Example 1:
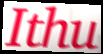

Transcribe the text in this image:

Ithu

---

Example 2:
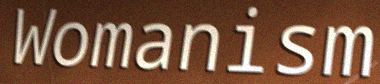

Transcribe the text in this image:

Womanism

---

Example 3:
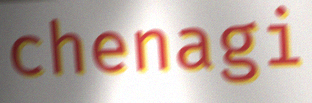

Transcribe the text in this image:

chenagi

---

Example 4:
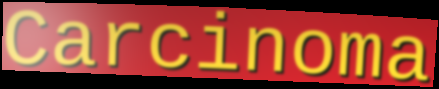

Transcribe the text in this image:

Carcinoma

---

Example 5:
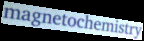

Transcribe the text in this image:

magnetochemistry